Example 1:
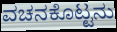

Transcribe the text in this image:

ವಚನಕೊಟ್ಟನು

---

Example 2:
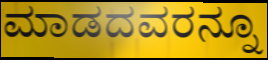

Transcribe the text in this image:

ಮಾಡದವರನ್ನೂ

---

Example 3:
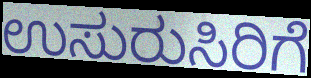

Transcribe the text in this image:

ಉಸುರುಸಿರಿಗೆ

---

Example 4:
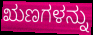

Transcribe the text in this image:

ಋಣಗಳನ್ನು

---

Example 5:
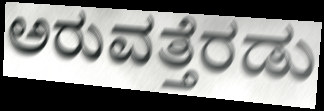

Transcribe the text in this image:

ಅರುವತ್ತೆರಡು